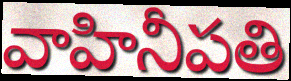
వాహినీపతి